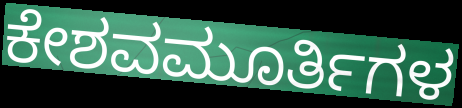
ಕೇಶವಮೂರ್ತಿಗಳ